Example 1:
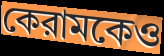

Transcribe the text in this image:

কেরামকেও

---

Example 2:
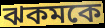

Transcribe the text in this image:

ঝকমকে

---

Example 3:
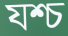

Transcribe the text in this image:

যশ্চ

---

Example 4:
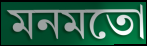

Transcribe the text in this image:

মনমতো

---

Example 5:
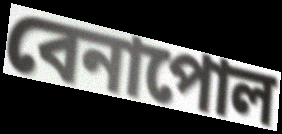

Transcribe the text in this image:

বেনাপোল